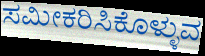
ಸಮೀಕರಿಸಿಕೊಳ್ಳುವ